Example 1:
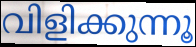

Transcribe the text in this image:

വിളിക്കുന്നൂ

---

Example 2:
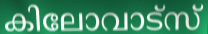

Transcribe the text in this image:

കിലോവാട്സ്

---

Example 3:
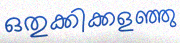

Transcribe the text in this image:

ഒതുക്കിക്കളഞ്ഞു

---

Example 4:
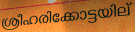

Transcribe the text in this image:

ശ്രീഹരിക്കോട്ടയില്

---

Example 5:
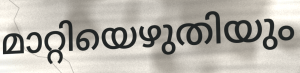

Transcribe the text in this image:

മാറ്റിയെഴുതിയും